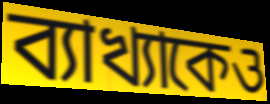
ব্যাখ্যাকেও